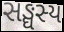
સઙ્ઘસ્ય